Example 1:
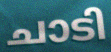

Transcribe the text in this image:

ചാടി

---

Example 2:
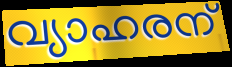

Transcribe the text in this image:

വ്യാഹരന്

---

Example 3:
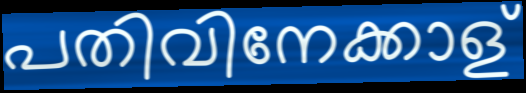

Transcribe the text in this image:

പതിവിനേക്കാള്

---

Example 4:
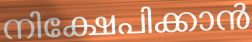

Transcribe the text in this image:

നിക്ഷേപിക്കാൻ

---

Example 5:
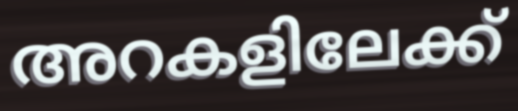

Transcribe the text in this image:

അറകളിലേക്ക്